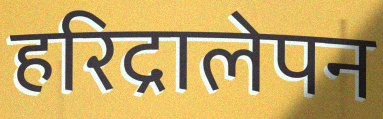
हरिद्रालेपन